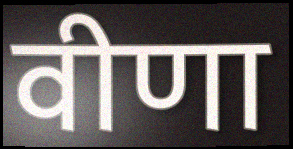
वीणा